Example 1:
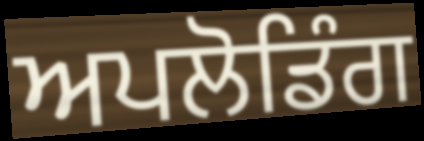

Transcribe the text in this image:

ਅਪਲੋਡਿੰਗ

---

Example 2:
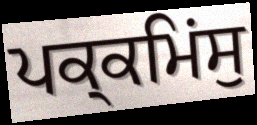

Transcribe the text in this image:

ਪਕ੍ਕਮਿਂਸੁ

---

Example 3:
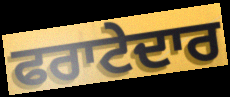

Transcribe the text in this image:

ਫਰਾਟੇਦਾਰ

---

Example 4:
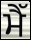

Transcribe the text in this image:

ਮੈੱ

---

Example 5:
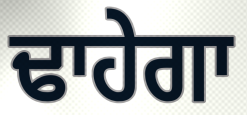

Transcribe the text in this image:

ਢਾਹੇਗਾ